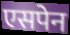
एसपेन